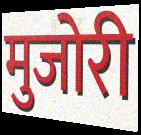
मुजोरी